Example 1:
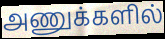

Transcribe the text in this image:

அணுக்களில்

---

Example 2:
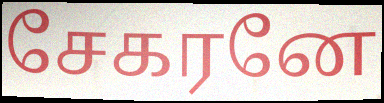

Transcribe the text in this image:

சேகரனே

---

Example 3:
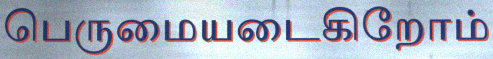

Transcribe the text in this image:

பெருமையடைகிறோம்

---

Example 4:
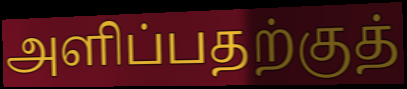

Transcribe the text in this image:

அளிப்பதற்குத்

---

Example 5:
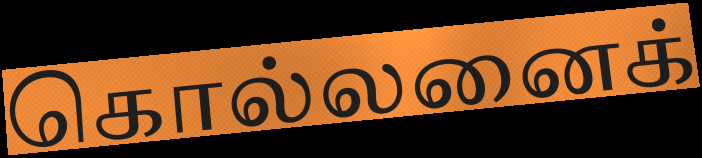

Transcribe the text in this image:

கொல்லனைக்